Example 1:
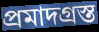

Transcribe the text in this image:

প্রমাদগ্রস্ত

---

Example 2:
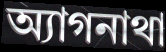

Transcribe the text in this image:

অ্যাগনাথা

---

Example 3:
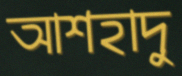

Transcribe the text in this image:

আশহাদু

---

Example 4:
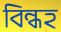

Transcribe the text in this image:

বিন্ধহ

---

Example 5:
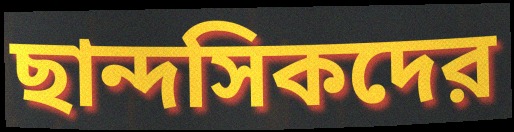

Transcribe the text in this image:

ছান্দসিকদের